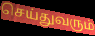
செய்துவரும்